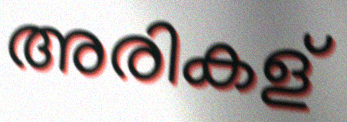
അരികള്